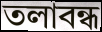
তলাবন্ধ